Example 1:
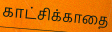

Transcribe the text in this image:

காட்சிக்காதை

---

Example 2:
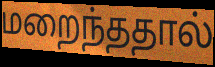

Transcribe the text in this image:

மறைந்ததால்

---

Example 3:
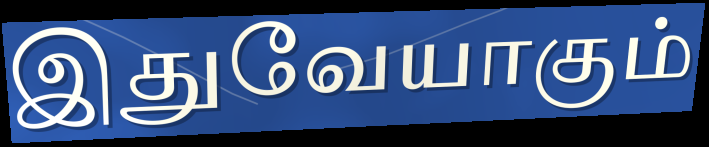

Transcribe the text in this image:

இதுவேயாகும்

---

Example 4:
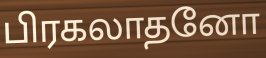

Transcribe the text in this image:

பிரகலாதனோ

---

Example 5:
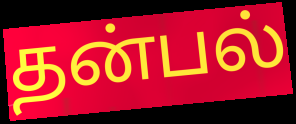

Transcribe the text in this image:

தன்பல்